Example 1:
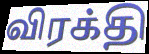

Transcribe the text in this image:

விரக்தி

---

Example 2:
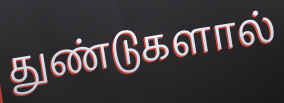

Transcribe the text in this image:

துண்டுகளால்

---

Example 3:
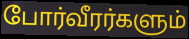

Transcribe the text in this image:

போர்வீரர்களும்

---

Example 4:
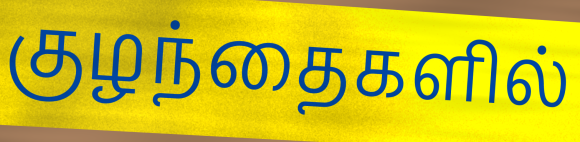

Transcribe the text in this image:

குழந்தைகளில்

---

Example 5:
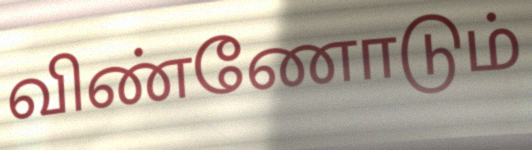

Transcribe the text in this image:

விண்ணோடும்